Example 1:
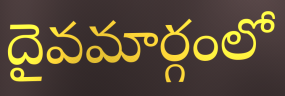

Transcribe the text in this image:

దైవమార్గంలో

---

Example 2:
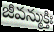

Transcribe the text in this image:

జీవన్ముక్తిః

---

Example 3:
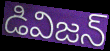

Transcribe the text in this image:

డివిజన్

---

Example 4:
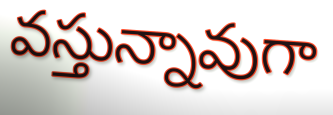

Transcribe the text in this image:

వస్తున్నావుగా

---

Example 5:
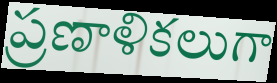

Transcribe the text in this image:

ప్రణాళికలుగా